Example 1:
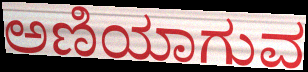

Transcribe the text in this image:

ಅಣಿಯಾಗುವ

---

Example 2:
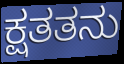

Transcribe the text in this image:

ಕ್ಷತತನು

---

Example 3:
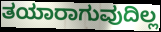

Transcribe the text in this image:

ತಯಾರಾಗುವುದಿಲ್ಲ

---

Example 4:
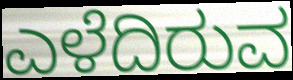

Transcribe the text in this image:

ಎಳೆದಿರುವ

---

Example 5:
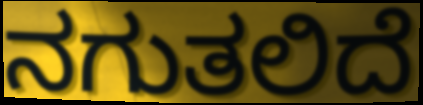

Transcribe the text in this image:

ನಗುತಲಿದೆ